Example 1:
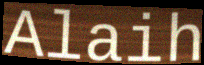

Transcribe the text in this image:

Alaih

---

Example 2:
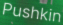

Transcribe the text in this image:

Pushkin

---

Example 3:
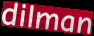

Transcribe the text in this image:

dilman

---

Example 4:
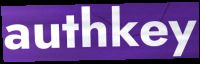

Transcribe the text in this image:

authkey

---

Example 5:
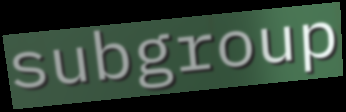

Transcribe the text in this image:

subgroup